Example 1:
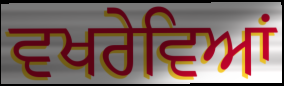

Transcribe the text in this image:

ਵਖਰੇਵਿਆਂ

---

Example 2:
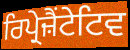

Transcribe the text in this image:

ਰਿਪ੍ਰੇਜ਼ੈਂਟੇਟਿਵ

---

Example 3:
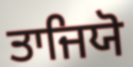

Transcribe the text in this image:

ਤਾਜਿਯੋ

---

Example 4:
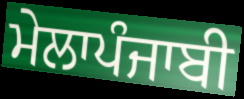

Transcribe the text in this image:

ਮੇਲਾਪੰਜਾਬੀ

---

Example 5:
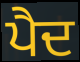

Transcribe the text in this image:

ਪੈਦ